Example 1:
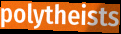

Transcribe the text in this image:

polytheists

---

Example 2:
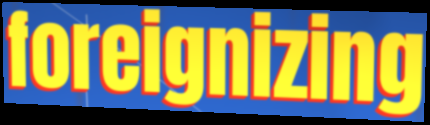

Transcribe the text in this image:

foreignizing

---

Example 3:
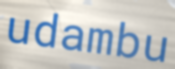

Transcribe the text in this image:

udambu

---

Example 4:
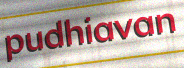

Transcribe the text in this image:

pudhiavan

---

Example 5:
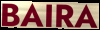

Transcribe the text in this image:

BAIRA